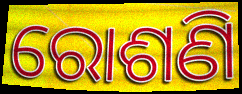
ରୋଶଣି